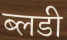
ब्लडी